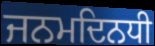
ਜਨਮਦਿਨਧੀ